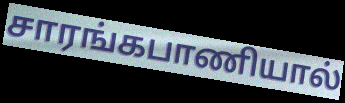
சாரங்கபாணியால்